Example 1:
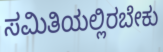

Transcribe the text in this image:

ಸಮಿತಿಯಲ್ಲಿರಬೇಕು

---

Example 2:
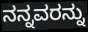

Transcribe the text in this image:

ನನ್ನವರನ್ನು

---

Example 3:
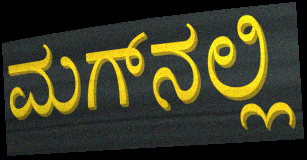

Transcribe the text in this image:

ಮಗ್‌ನಲ್ಲಿ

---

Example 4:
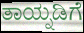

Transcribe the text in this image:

ತಾಯ್ನಡಿಗೆ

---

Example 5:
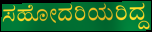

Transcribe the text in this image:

ಸಹೋದರಿಯರಿದ್ದ